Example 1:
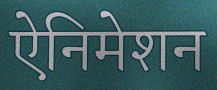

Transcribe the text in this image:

ऐनिमेशन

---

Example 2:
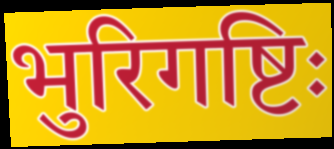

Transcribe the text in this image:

भुरिगष्टिः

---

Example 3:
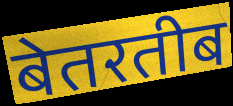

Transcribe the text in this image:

बेतरतीब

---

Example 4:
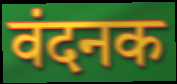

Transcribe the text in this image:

वंदनक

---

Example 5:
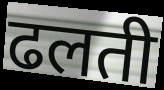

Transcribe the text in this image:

ढलती